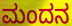
ಮಂದನ